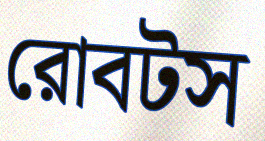
রোবটস